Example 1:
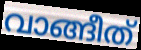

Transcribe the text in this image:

വാങ്ങീത്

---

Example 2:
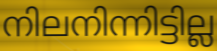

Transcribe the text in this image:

നിലനിന്നിട്ടില്ല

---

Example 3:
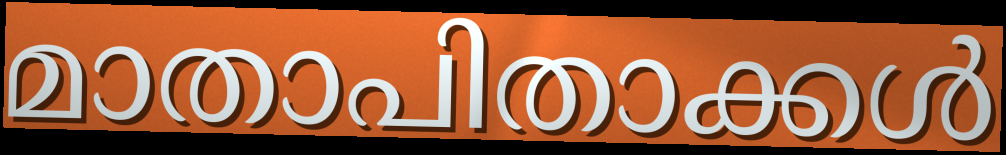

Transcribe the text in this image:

മാതാപിതാക്കൾ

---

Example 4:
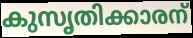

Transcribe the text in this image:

കുസൃതിക്കാരന്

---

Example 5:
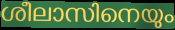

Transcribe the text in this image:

ശീലാസിനെയും